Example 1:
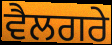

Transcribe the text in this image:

ਵੈਲਗਰੇ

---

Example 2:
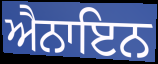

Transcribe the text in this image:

ਐਨਾਇਨ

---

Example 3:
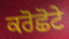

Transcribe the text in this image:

ਕਰੋਛੋਟੇ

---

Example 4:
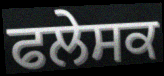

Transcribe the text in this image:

ਫਲੇਸਕ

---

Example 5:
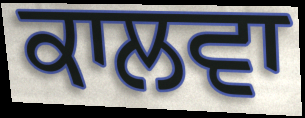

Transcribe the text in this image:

ਕਾਲਵਾ